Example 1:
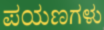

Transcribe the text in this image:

ಪಯಣಗಳು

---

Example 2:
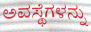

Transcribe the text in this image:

ಅವಸ್ಥೆಗಳನ್ನು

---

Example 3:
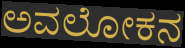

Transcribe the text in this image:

ಅವಲೋಕನ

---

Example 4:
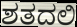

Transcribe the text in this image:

ಶತದಲಿ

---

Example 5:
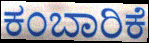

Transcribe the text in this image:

ಕಂಬಾರಿಕೆ